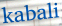
kabali